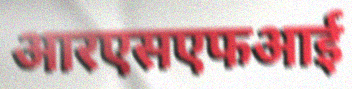
आरएसएफआई